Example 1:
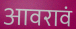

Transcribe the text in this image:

आवरावं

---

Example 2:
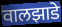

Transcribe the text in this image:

वालझाडे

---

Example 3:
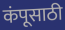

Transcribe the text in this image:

कंपूसाठी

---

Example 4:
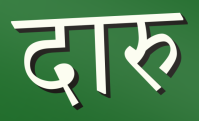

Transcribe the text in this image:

दारु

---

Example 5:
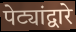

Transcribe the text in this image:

पेट्यांद्वारे